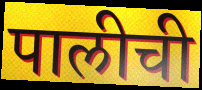
पालीची